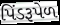
પિંડરૂપેળ